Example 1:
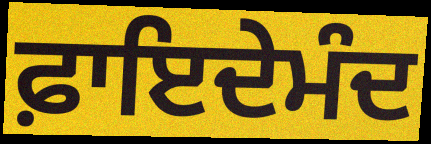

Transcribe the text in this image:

ਫ਼ਾਇਦੇਮੰਦ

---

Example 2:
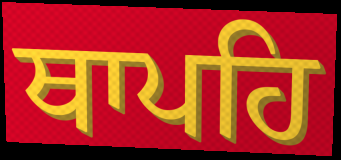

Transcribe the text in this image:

ਥਾਪਹਿ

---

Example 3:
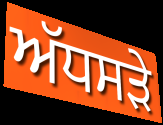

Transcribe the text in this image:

ਅੱਧਸੜੇ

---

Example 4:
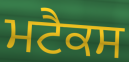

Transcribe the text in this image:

ਮਟੈਕਸ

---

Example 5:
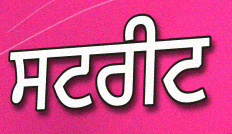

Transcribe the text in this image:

ਸਟਰੀਟ